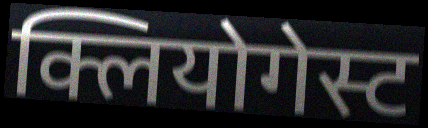
क्लियोगेस्ट